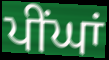
ਪੀਂਘਾਂ